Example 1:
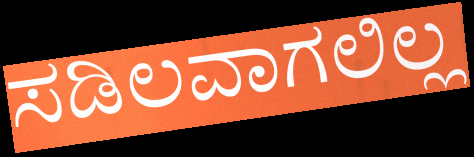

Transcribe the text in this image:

ಸಡಿಲವಾಗಲಿಲ್ಲ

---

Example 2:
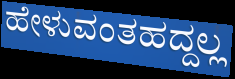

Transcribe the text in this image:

ಹೇಳುವಂತಹದ್ದಲ್ಲ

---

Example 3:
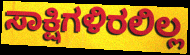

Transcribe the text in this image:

ಸಾಕ್ಷಿಗಳಿರಲಿಲ್ಲ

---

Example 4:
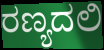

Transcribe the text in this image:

ರಣ್ಯದಲಿ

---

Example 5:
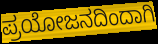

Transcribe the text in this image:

ಪ್ರಯೋಜನದಿಂದಾಗಿ